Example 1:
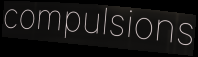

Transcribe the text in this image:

compulsions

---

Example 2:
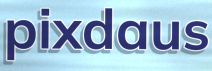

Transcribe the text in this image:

pixdaus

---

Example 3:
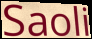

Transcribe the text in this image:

Saoli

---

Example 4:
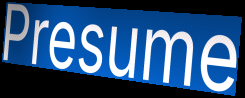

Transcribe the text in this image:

Presume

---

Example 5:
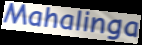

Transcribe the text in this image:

Mahalinga